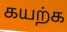
கயற்க